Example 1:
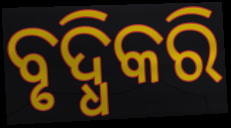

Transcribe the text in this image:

ବୃଦ୍ଧିକରି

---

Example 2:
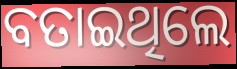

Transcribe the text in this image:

ବତାଇଥିଲେ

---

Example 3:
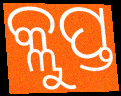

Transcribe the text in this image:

କ୍ଲୁପ୍ତ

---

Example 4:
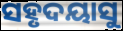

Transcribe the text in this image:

ସହୃଦୟାସୁ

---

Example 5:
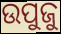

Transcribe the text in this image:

ଉପୁଜୁ